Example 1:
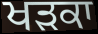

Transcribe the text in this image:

ਖੜਕਾ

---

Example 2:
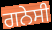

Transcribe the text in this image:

ਗਨੇਸੀ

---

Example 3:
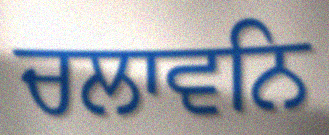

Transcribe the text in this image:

ਚਲਾਵਨਿ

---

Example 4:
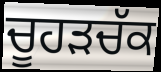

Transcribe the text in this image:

ਚੂਹਡ਼ਚੱਕ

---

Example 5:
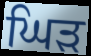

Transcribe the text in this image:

ਘਿੜ